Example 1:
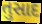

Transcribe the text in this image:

તુસાદ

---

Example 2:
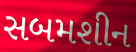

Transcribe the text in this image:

સબમશીન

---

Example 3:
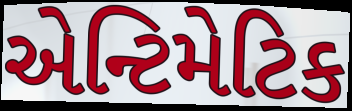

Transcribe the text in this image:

એન્ટિમેટિક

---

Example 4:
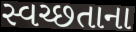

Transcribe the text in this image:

સ્વચ્છતાના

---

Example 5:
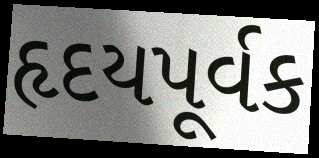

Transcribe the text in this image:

હૃદયપૂર્વક